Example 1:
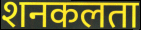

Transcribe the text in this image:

शनकलता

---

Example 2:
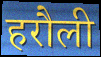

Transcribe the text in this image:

हरौली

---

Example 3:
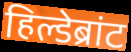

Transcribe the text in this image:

हिल्डेब्रांट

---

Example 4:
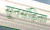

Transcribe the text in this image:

सूतसंहिता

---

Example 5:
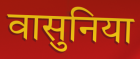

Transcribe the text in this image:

वासुनिया